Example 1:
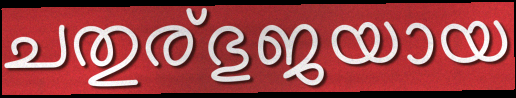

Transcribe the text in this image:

ചതുര്ഭുജയായ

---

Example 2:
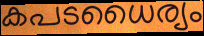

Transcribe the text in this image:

കപടധൈര്യം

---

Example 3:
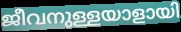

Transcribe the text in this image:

ജീവനുള്ളയാളായി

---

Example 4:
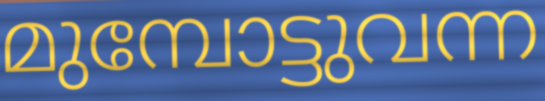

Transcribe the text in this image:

മുമ്പോട്ടുവന്ന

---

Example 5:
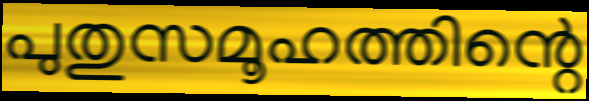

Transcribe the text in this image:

പുതുസമൂഹത്തിന്റെ